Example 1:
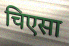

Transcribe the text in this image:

चिएसा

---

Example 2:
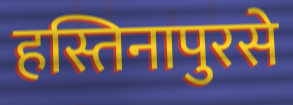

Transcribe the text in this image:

हस्तिनापुरसे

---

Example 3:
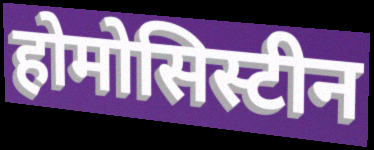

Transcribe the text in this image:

होमोसिस्टीन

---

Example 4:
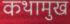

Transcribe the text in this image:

कथामुख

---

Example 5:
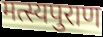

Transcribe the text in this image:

मत्स्यपुराण